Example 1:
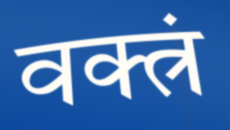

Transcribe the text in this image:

वक्त्रं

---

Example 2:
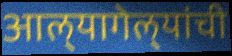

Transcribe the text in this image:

आल्यागेल्यांची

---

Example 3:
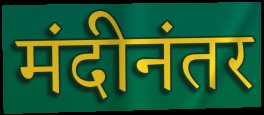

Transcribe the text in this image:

मंदीनंतर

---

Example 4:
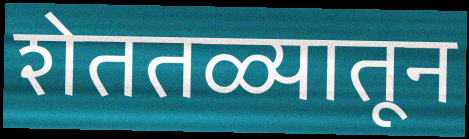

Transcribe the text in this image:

शेततळ्यातून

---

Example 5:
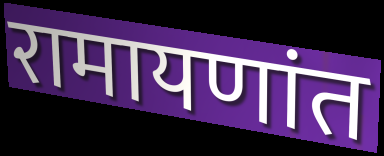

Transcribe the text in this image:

रामायणांत